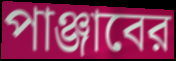
পাঞ্জাবের